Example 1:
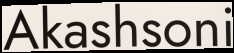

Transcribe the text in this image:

Akashsoni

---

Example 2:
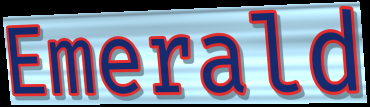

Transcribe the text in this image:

Emerald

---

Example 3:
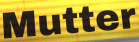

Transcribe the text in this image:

Mutter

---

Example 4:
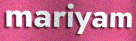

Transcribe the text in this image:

mariyam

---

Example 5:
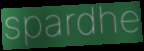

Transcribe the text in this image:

spardhe